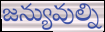
జన్యువుల్ని